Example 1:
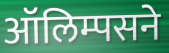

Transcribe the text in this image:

ऑलिम्पसने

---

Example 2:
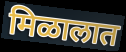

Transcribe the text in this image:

मिळालात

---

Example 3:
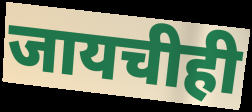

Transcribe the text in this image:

जायचीही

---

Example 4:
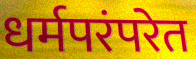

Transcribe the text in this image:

धर्मपरंपरेत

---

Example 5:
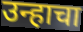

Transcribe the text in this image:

उन्हाचा